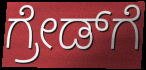
ಗ್ರೇಡ್‌ಗೆ